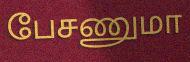
பேசணுமா